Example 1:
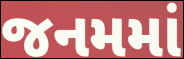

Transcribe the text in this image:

જનમમાં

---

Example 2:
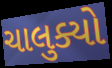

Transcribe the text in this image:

ચાલુક્યો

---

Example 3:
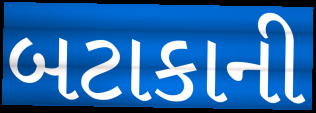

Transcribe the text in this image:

બટાકાની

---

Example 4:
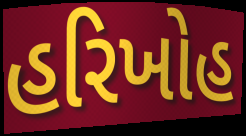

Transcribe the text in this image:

હરિખોહ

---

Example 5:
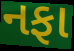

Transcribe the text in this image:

નફા